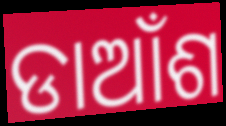
ଡାଆଁଶ